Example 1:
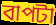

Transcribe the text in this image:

বাপটা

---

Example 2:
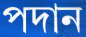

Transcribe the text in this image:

পদান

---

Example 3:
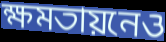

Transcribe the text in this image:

ক্ষমতায়নেও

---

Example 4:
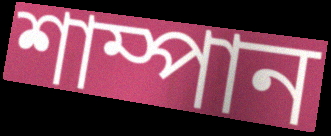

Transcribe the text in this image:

শাম্পান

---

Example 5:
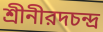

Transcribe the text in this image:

শ্রীনীরদচন্দ্র